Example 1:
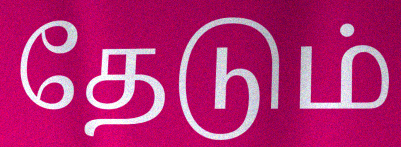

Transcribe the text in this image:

தேடும்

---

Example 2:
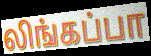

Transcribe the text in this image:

லிங்கப்பா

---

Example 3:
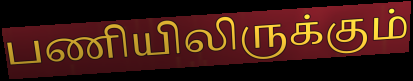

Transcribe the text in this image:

பணியிலிருக்கும்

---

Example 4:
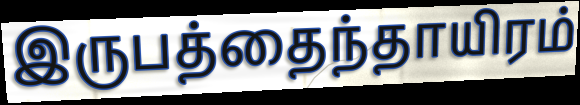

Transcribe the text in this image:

இருபத்தைந்தாயிரம்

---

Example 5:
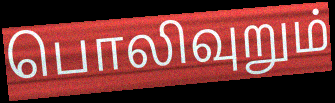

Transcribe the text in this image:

பொலிவுறும்